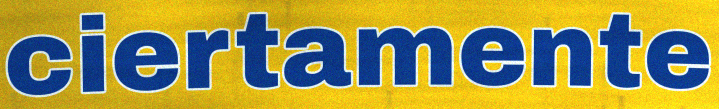
ciertamente